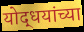
योद्धयांच्या